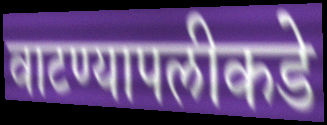
वाटण्यापलीकडे